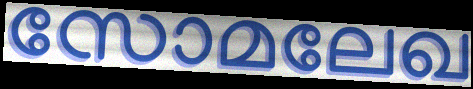
സോമലേഖ